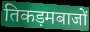
तिकड़मबाजों